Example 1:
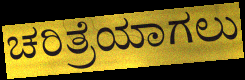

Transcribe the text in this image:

ಚರಿತ್ರೆಯಾಗಲು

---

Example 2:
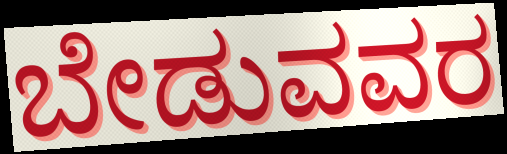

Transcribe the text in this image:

ಬೇಡುವವರ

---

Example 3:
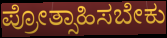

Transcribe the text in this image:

ಪ್ರೋತ್ಸಾಹಿಸಬೇಕು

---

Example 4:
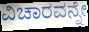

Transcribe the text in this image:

ವಿಚಾರವನ್ನೇ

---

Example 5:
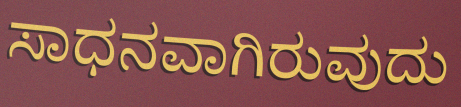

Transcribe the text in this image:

ಸಾಧನವಾಗಿರುವುದು